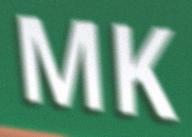
MK